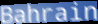
Bahrain